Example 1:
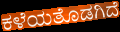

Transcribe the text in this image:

ಕಳೆಯತೊಡಗಿದೆ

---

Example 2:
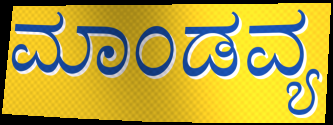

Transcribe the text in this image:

ಮಾಂಡವ್ಯ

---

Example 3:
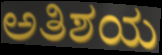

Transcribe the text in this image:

ಅತಿಶಯ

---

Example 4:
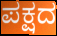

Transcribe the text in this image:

ಪಕ್ಷದ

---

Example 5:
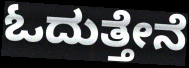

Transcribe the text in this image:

ಓದುತ್ತೇನೆ